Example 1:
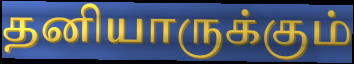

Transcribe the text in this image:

தனியாருக்கும்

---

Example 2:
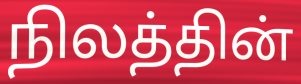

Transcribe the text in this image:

நிலத்தின்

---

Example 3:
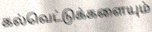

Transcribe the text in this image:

கல்வெட்டுக்களையும்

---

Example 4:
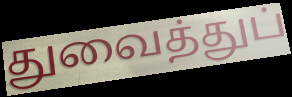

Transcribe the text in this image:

துவைத்துப்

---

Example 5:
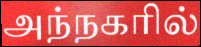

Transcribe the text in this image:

அந்நகரில்